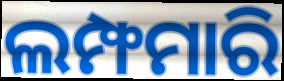
ଲମ୍ଫମାରି